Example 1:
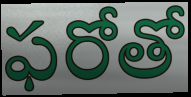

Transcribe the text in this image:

ఫరోతో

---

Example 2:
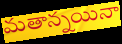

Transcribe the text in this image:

మతాన్నయినా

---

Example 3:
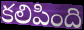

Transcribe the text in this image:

కలిపింది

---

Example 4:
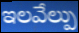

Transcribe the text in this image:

ఇలవేల్పు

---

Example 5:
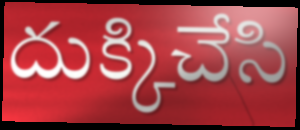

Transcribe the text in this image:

దుక్కిచేసి